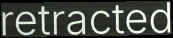
retracted